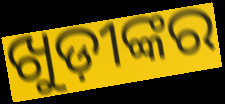
ଖୁଡ଼ୀଙ୍କର